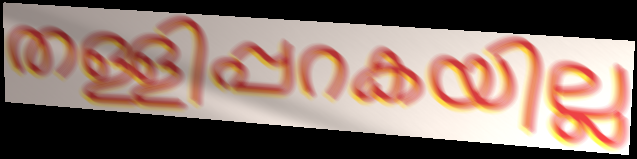
തള്ളിപ്പറകയില്ല